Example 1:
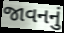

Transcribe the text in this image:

જાવનનું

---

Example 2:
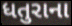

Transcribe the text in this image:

ધતુરાના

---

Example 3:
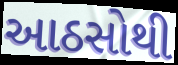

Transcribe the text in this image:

આઠસોથી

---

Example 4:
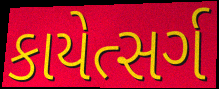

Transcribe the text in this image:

કાયેત્સર્ગ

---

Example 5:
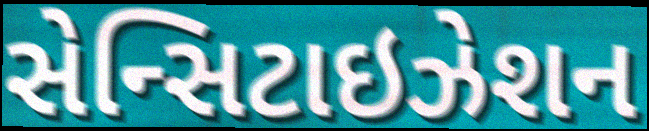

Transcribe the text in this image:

સેન્સિટાઇઝેશન